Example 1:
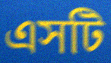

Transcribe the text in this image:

এসটি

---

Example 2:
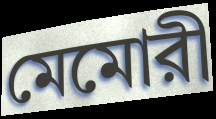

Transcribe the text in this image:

মেমোরী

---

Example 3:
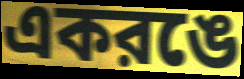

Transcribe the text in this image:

একরঙে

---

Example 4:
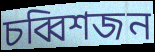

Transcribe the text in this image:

চব্বিশজন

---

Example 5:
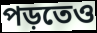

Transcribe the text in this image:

পড়তেও